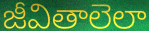
జీవితాలెలా